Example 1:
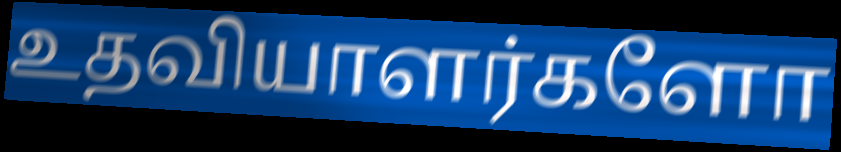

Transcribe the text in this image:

உதவியாளர்களோ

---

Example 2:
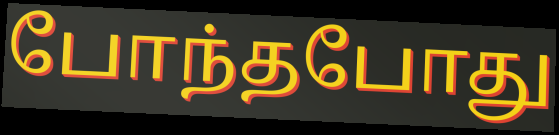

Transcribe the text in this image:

போந்தபோது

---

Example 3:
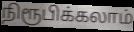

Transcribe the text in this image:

நிரூபிக்கலாம்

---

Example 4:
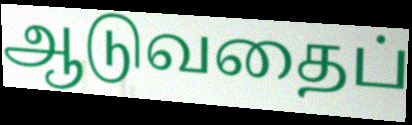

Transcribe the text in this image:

ஆடுவதைப்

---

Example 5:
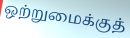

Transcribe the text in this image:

ஒற்றுமைக்குத்